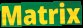
Matrix